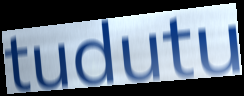
tudutu